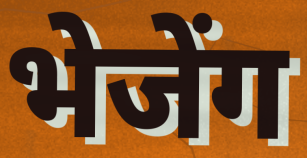
भेजेंग